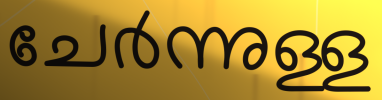
ചേർന്നുള്ള